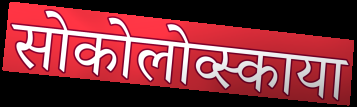
सोकोलोव्स्काया